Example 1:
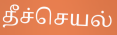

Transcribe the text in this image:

தீச்செயல்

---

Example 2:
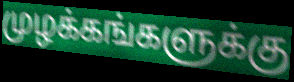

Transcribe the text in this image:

முழக்கங்களுக்கு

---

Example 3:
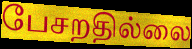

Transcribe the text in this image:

பேசறதில்லை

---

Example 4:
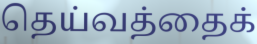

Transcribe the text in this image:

தெய்வத்தைக்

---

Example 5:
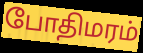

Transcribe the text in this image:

போதிமரம்